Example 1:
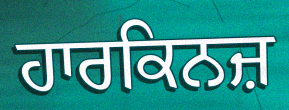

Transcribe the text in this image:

ਹਾਰਕਿਨਜ਼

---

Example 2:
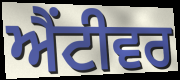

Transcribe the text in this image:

ਐਂਟੀਵਰ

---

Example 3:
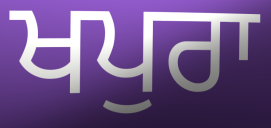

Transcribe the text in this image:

ਖਪੁਰਾ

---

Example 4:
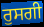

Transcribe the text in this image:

ਰੁਸਗੀ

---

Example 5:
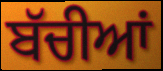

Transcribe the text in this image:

ਬੱਚੀਆਂ